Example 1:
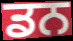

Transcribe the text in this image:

ਡਨ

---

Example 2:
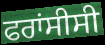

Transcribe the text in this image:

ਫਰਾਂਸੀਸੀ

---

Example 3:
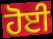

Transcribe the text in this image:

ਹੋਈ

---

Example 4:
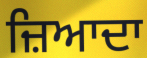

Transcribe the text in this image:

ਜ਼ਿਆਦਾ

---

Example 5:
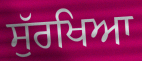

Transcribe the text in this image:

ਸੁੱਰਖਿਆ